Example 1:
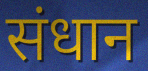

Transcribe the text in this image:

संधान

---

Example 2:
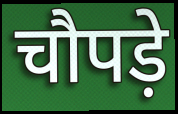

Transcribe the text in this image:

चौपड़े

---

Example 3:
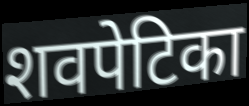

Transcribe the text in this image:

शवपेटिका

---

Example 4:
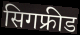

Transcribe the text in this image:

सिगफ्रीड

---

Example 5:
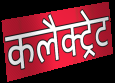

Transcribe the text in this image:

कलैक्ट्रेट